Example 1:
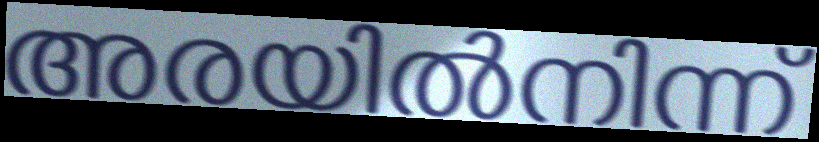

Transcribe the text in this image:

അരയിൽനിന്ന്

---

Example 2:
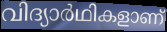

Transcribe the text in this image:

വിദ്യാർഥികളാണ്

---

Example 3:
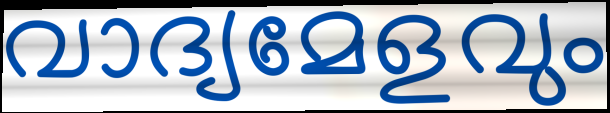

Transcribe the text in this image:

വാദ്യമേളവും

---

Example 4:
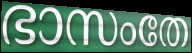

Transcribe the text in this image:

ഭാസംതേ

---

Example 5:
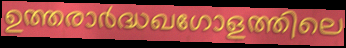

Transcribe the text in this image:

ഉത്തരാർദ്ധഖഗോളത്തിലെ